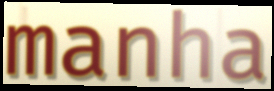
manha